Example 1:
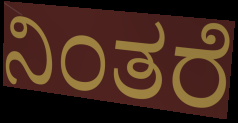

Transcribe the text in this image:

ನಿಂತರೆ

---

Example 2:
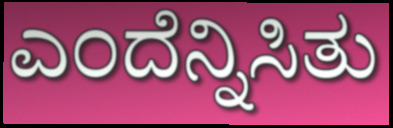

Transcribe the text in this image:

ಎಂದೆನ್ನಿಸಿತು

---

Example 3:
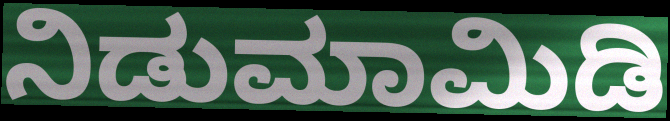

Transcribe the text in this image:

ನಿಡುಮಾಮಿಡಿ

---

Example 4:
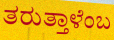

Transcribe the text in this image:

ತರುತ್ತಾಳೆಂಬ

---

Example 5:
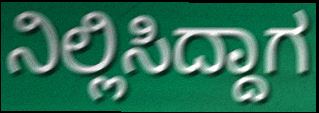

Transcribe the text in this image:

ನಿಲ್ಲಿಸಿದ್ದಾಗ